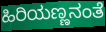
ಹಿರಿಯಣ್ಣನಂತೆ